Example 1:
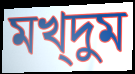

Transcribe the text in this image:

মখ্দুম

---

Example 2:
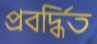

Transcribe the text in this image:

প্রবর্দ্ধিত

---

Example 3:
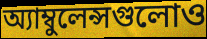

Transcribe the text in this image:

অ্যাম্বুলেন্সগুলোও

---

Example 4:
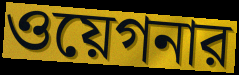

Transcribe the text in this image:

ওয়েগনার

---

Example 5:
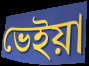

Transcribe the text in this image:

ভেইয়া